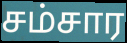
சம்சார